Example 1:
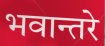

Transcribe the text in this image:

भवान्तरे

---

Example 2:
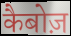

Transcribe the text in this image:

कैबोज़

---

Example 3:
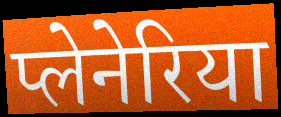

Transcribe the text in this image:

प्लेनेरिया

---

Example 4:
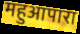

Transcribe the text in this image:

महुआपारा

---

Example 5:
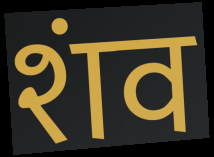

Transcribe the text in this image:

शंव